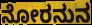
ನೋರನುನ